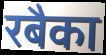
रबैका